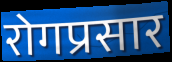
रोगप्रसार